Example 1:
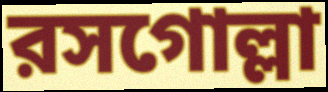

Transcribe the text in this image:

রসগোল্লা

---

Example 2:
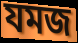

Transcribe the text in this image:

যমজ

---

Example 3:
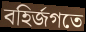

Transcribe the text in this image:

বহির্জগতে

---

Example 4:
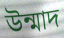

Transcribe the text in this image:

উন্মাদ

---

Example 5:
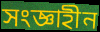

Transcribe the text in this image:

সংজ্ঞাহীন